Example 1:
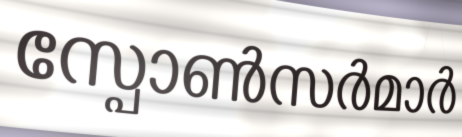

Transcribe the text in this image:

സ്പോൺസർമാർ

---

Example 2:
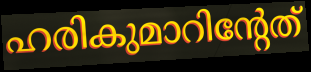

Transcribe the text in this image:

ഹരികുമാറിന്റേത്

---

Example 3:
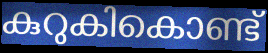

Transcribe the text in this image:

കുറുകികൊണ്ട്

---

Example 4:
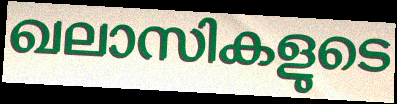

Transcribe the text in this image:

ഖലാസികളുടെ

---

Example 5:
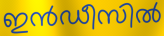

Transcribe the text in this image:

ഇൻഡീസിൽ